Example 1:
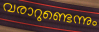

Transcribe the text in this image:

വരാറുണ്ടെന്നും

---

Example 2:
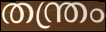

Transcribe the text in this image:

തന്ത്രം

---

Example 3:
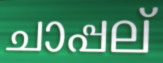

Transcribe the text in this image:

ചാപ്പല്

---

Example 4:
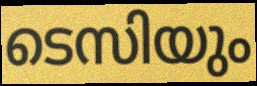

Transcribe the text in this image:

ടെസിയും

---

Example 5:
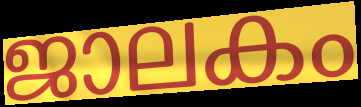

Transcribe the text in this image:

ജാലകം